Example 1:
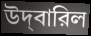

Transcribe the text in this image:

উদ্‌বারিল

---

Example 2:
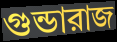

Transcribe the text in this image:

গুন্ডারাজ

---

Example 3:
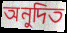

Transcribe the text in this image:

অনুদিত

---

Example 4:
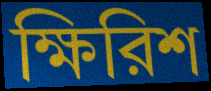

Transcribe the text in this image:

ক্ষিরিশ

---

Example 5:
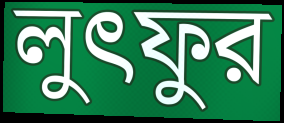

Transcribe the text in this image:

লুৎফুর